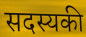
सदस्यकी